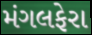
મંગલફેરા